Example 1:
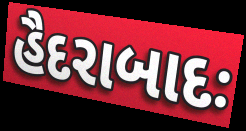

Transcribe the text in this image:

હૈદરાબાદઃ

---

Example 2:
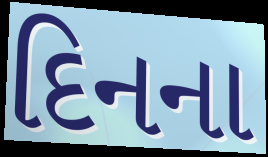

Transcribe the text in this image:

દિનના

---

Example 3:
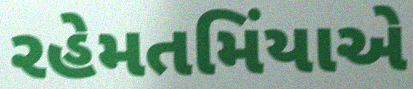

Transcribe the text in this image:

રહેમતમિંયાએ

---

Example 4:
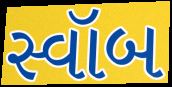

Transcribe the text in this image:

સ્વૉબ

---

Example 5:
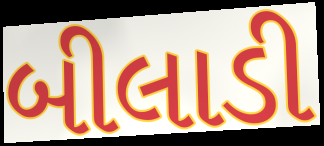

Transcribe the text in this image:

બીલાડી